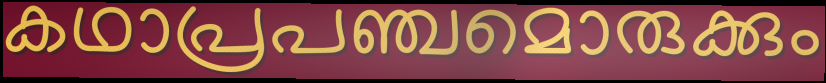
കഥാപ്രപഞ്ചമൊരുക്കും